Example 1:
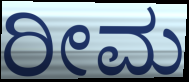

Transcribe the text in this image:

ರೀಮ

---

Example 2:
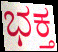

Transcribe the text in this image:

ಭಕ್ತ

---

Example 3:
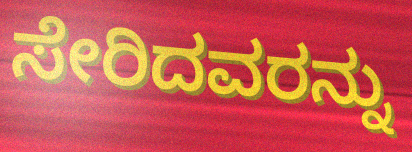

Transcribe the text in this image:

ಸೇರಿದವರನ್ನು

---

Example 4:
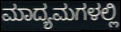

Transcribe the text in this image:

ಮಾದ್ಯಮಗಳಲ್ಲಿ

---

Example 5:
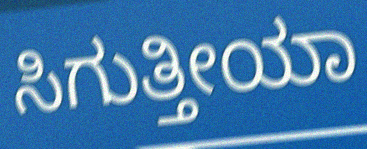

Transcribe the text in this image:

ಸಿಗುತ್ತೀಯಾ